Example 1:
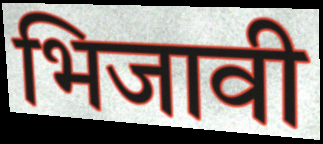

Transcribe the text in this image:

भिजावी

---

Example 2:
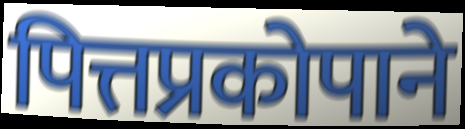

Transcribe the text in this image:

पित्तप्रकोपाने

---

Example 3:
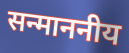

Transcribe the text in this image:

सन्माननीय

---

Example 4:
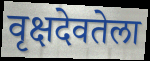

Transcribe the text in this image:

वृक्षदेवतेला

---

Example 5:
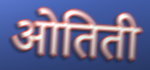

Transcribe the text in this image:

ओतिती